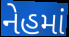
નેહમાં